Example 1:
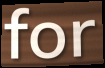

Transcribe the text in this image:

for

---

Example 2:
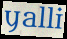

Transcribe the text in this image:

yalli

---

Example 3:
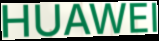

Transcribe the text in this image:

HUAWEI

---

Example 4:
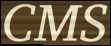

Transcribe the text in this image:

CMS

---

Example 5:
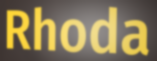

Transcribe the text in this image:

Rhoda